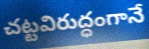
చట్టవిరుద్ధంగానే